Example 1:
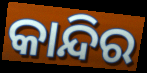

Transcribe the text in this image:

କାନ୍ଦିର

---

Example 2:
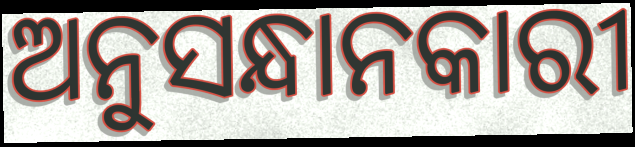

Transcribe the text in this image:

ଅନୁସନ୍ଧାନକାରୀ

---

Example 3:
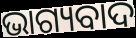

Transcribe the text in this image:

ଭାଗ୍ୟବାଦ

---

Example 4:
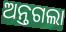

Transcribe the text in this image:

ଅନ୍ତଗଲା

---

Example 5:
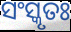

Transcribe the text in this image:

ସଂସ୍କୃତଃ